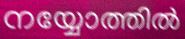
നയ്യോത്തിൽ